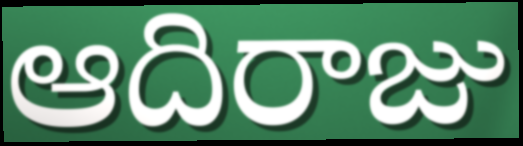
ఆదిరాజు